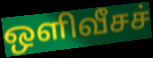
ஒளிவீசச்